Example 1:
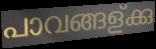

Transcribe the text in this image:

പാവങ്ങള്ക്കു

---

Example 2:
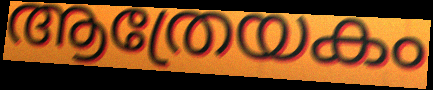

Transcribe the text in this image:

ആത്രേയകം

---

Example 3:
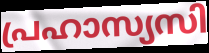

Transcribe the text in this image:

പ്രഹാസ്യസി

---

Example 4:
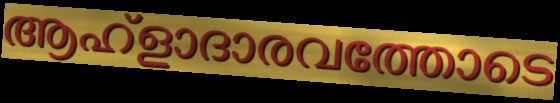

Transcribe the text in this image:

ആഹ്ളാദാരവത്തോടെ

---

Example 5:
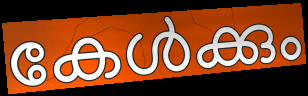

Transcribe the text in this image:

കേൾക്കും